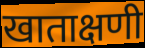
खाताक्षणी